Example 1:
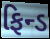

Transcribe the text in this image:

ફિન્ડ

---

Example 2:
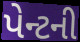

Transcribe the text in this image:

પેન્ટની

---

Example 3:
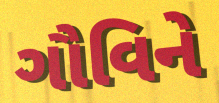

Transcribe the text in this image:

ગૌવિને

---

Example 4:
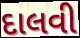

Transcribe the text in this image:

દાલવી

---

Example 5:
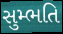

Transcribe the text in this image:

સુમ્ભતિ